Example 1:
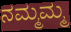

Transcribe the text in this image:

ನಮ್ಮಮ್ಮ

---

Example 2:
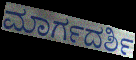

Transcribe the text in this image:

ಮಾರ್ಗದರ್ಶಿ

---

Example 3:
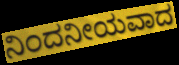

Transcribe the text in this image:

ನಿಂದನೀಯವಾದ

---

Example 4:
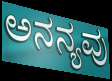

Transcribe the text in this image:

ಅನನ್ಯವು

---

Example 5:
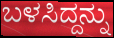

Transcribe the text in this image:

ಬಳಸಿದ್ದನ್ನು